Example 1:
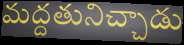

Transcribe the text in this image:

మద్దతునిచ్చాడు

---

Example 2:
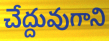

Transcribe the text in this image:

చేద్దువుగాని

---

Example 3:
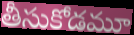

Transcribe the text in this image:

తీసుకోడమూ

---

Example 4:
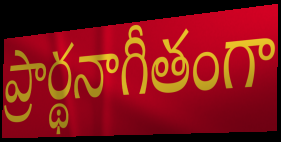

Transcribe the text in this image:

ప్రార్థనాగీతంగా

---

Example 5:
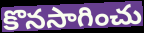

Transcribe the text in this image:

కొనసాగించు